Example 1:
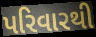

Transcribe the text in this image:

પરિવારથી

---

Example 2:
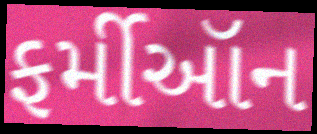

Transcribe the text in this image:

ફર્મીઑન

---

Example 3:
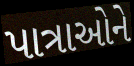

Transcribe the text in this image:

પાત્રાઓને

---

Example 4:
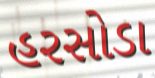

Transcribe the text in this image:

હરસોડા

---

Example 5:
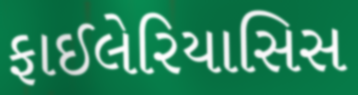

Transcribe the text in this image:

ફાઈલેરિયાસિસ